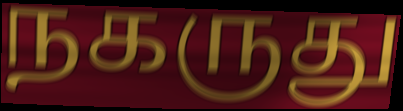
நகருது